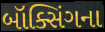
બૉક્સિંગના